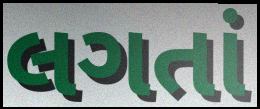
લગતાં